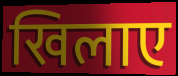
खिलाए